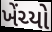
ખેંચ્યો